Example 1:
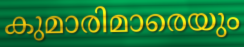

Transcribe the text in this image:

കുമാരിമാരെയും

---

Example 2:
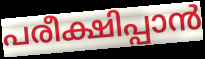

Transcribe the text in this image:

പരീക്ഷിപ്പാൻ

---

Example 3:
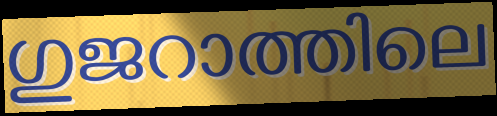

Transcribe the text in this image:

ഗുജറാത്തിലെ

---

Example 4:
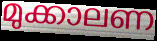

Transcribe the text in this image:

മുക്കാലണ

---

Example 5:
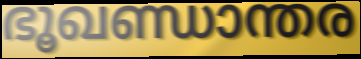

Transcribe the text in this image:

ഭൂഖണ്ഡാന്തര